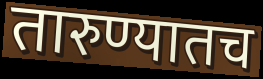
तारुण्यातच